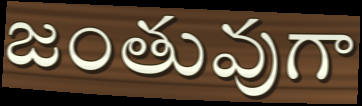
జంతువుగా